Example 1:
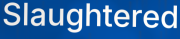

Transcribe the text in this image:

Slaughtered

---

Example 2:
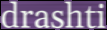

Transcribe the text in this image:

drashti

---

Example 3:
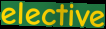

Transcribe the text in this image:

elective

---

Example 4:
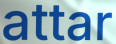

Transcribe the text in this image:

attar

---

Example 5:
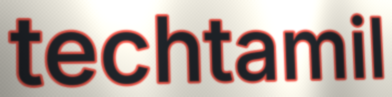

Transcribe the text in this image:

techtamil